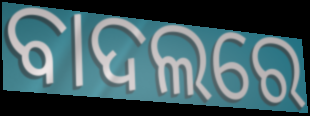
ବାଦଲରେ